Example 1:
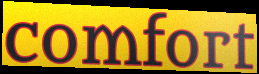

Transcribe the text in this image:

comfort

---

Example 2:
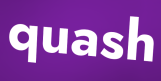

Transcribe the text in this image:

quash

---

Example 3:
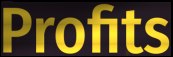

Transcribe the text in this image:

Profits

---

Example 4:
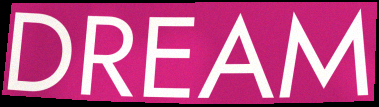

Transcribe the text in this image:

DREAM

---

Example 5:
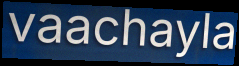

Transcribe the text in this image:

vaachayla